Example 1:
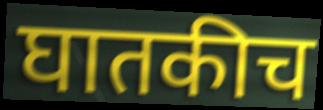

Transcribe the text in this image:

घातकीच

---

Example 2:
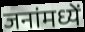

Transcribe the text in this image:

जनांमध्यें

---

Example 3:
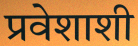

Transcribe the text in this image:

प्रवेशाशी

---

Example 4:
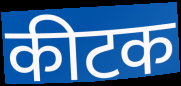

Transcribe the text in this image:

कीटक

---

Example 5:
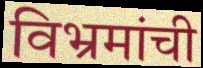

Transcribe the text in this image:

विभ्रमांची